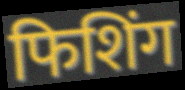
फिशिंग